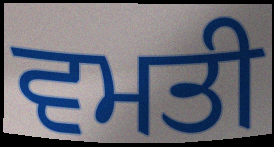
ਵਮਤੀ